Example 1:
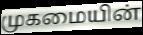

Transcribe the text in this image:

முகமையின்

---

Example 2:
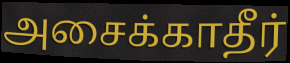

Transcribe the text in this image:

அசைக்காதீர்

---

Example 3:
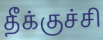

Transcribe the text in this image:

தீக்குச்சி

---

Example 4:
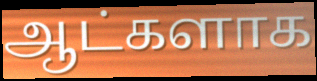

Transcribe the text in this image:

ஆட்களாக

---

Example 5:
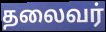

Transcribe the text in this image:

தலைவர்